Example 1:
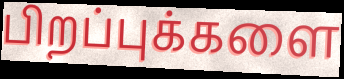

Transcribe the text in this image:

பிறப்புக்களை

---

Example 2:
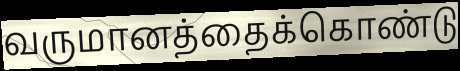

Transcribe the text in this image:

வருமானத்தைக்கொண்டு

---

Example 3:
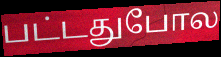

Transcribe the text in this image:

பட்டதுபோல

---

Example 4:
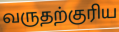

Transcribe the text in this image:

வருதற்குரிய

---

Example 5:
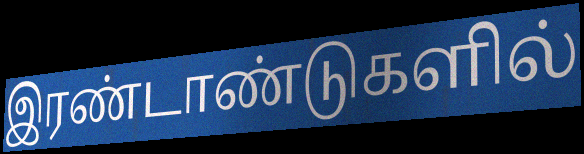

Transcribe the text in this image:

இரண்டாண்டுகளில்